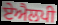
ਏਐਲਪੀ